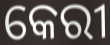
କେରୀ